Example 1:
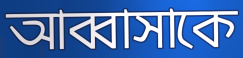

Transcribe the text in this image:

আব্বাসাকে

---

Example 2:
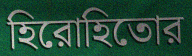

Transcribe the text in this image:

হিরোহিতোর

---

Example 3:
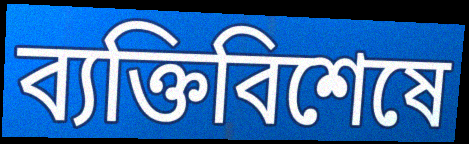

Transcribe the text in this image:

ব্যক্তিবিশেষে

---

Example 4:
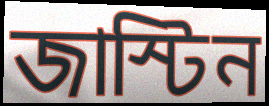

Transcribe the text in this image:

জাস্টিন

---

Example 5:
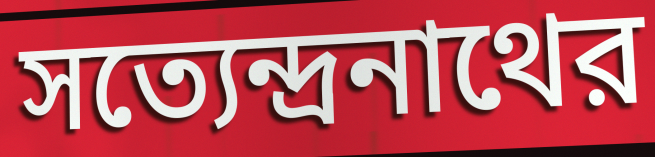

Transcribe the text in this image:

সত্যেন্দ্রনাথের